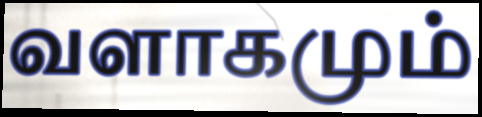
வளாகமும்